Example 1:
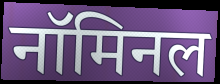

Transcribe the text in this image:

नॉमिनल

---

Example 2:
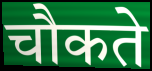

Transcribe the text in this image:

चौकते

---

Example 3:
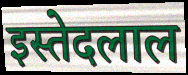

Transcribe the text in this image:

इस्तेदलाल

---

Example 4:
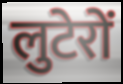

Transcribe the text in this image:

लुटेरों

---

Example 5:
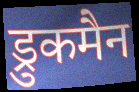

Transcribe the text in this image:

ड्रुकमैन